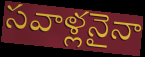
సవాళ్లనైనా